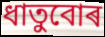
ধাতুবোৰ